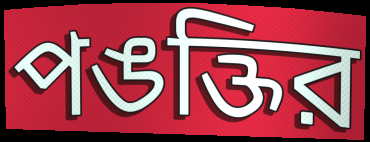
পঙক্তির